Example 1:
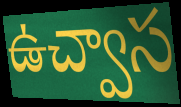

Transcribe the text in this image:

ఉచ్వాస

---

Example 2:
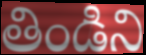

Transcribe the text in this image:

తిండిని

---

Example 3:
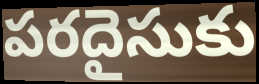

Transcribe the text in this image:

పరదైసుకు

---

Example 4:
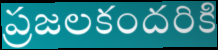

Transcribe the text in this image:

ప్రజలకందరికి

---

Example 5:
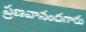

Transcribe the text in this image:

ప్రణవానందగారు